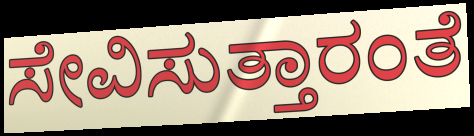
ಸೇವಿಸುತ್ತಾರಂತೆ